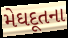
મેઘદૂતના